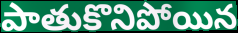
పాతుకొనిపోయిన